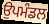
ਉਪਮੰਡਲ